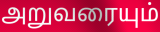
அறுவரையும்